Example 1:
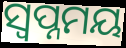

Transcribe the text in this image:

ସ୍ଵପ୍ନମୟ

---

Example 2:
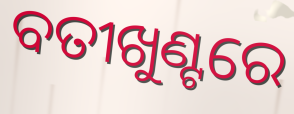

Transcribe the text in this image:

ବତୀଖୁଣ୍ଟରେ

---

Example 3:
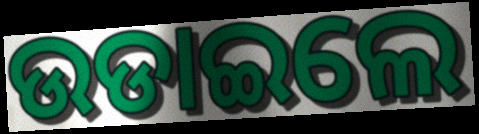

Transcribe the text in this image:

ଉଡାଇଲେ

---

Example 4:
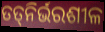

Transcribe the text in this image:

ତତ୍‍ନିର୍ଭରଶୀଳ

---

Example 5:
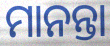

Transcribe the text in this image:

ମାନନ୍ତା